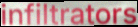
infiltrators